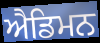
ਐਡਿਮਨ